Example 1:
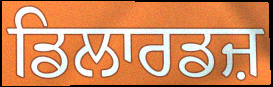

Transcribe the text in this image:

ਡਿਲਾਰਡਜ਼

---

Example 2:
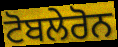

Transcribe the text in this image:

ਟੋਬਲੇਰੋਨ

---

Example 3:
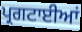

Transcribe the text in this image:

ਪ੍ਰਗਟਾਈਆਂ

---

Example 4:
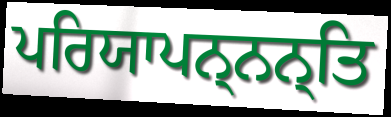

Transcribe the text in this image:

ਪਰਿਯਾਪਨ੍ਨਨ੍ਤਿ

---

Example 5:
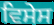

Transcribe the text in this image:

ਵਿਸੇਸ